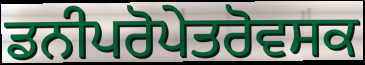
ਡਨੀਪਰੋਪੇਤਰੋਵਸਕ